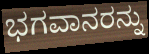
ಭಗವಾನರನ್ನು